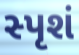
સ્પૃશં